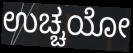
ಉಚ್ಚಯೋ